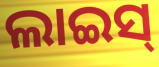
ଲାଇସ୍